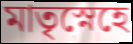
মাতৃস্নেহে